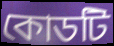
কোডটি